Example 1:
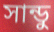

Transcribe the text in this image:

সান্ডু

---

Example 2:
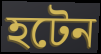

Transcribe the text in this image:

হটেন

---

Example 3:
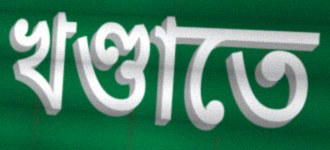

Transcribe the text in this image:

খণ্ডাতে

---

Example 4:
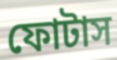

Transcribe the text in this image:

ফোটাস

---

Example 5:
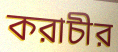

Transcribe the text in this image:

করাচীর